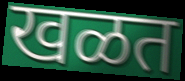
खळत